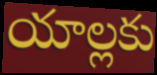
యాల్లకు